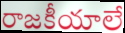
రాజకీయాలే